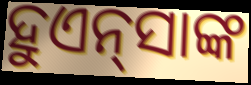
ହୁଏନ୍‍ସାଙ୍କ